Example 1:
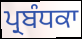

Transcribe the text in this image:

ਪ੍ਰਬੰਧਕਾ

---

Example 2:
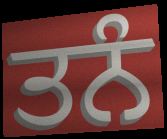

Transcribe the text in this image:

ਤਨੰ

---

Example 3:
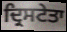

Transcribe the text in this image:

ਦ੍ਰਿਸਟੇਤਾ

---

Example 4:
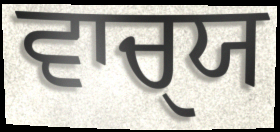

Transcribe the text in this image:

ਵਾਚੑਯ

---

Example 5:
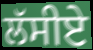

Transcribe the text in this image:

ਲੱਸੀਏ